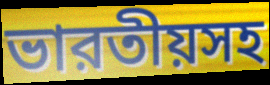
ভারতীয়সহ